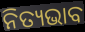
ନିତ୍ୟଭାବ